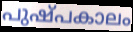
പുഷ്പകാലം